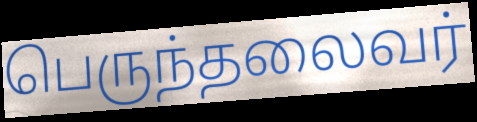
பெருந்தலைவர்